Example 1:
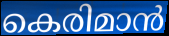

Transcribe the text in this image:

കെരിമാൻ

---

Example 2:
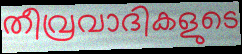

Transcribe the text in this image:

തീവ്രവാദികളുടെ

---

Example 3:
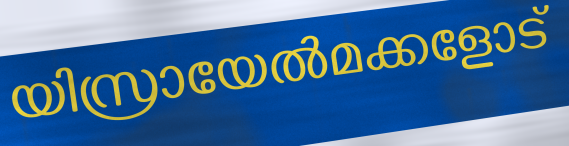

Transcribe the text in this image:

യിസ്രായേൽമക്കളോട്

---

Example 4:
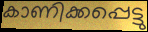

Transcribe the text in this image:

കാണിക്കപ്പെട്ടു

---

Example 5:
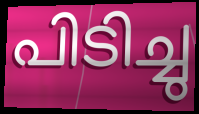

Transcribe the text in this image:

പിടിച്ചു